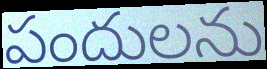
పందులను